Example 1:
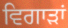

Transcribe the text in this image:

ਵਿਗਾੜਾਂ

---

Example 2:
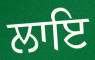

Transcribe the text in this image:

ਲਾਇ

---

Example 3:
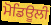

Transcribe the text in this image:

ਮੋਡਿਊਲੀ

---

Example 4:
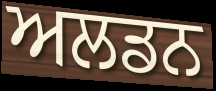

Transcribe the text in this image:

ਅਲਡਨ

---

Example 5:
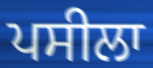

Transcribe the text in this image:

ਪਸੀਲਾ